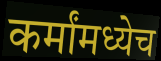
कर्मांमध्येच